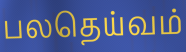
பலதெய்வம்